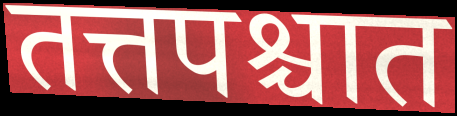
तत्तपश्चात